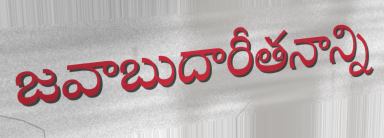
జవాబుదారీతనాన్ని